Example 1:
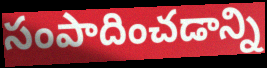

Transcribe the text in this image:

సంపాదించడాన్ని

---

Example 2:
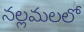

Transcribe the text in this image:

నల్లమలలో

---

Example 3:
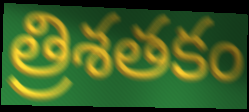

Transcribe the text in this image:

త్రిశతకం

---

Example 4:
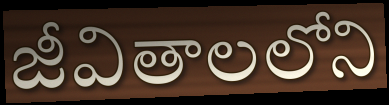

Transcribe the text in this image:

జీవితాలలోని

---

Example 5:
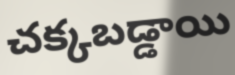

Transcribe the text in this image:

చక్కబడ్డాయి